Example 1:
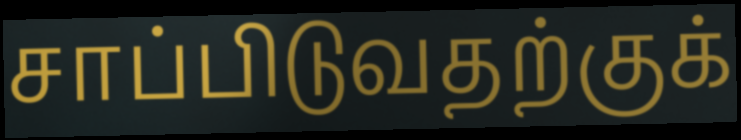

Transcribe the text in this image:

சாப்பிடுவதற்குக்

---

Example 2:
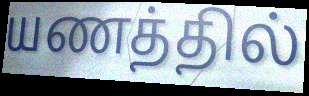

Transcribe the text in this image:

யணத்தில்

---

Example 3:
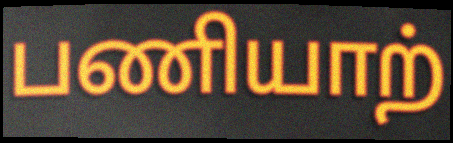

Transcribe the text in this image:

பணியாற்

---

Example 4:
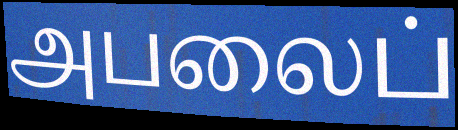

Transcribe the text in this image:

அபலைப்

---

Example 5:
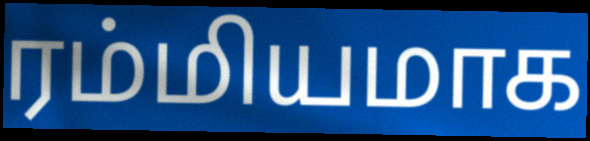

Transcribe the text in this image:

ரம்மியமாக